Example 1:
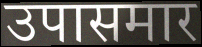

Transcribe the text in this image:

उपासमार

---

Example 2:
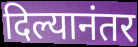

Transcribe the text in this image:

दिल्यानंतर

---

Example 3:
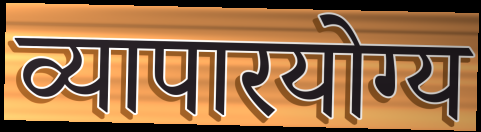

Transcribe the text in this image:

व्यापारयोग्य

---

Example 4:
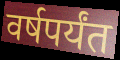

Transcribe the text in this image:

वर्षपर्यंत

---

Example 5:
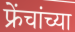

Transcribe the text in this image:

फ्रेंचांच्या